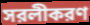
সরলীকরণ